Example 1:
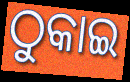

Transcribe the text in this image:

ଠୁକାଇ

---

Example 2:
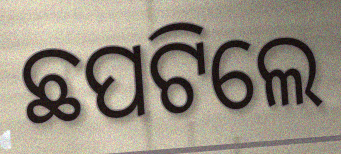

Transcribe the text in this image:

ଛପଟିଲେ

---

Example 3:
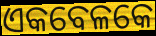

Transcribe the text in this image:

ଏକବେଳକେ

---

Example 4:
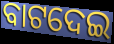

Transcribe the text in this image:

ବାଟଦେଇ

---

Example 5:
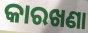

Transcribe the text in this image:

କାରଖଣା